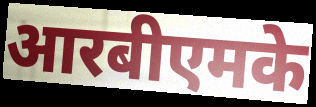
आरबीएमके